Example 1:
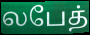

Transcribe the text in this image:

லபேத்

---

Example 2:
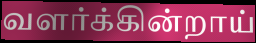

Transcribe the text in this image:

வளர்க்கின்றாய்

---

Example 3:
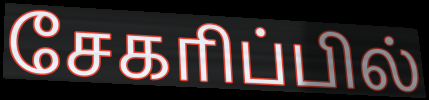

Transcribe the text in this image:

சேகரிப்பில்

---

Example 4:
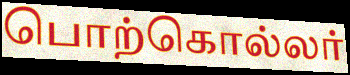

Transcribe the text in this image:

பொற்கொல்லர்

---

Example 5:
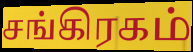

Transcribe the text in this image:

சங்கிரகம்